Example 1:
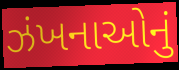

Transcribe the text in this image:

ઝંખનાઓનું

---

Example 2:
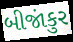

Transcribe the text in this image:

બીજાંકુર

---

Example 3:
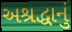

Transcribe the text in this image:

અશ્રદ્ધાનું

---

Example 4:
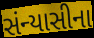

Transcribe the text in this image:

સંન્યાસીના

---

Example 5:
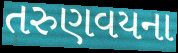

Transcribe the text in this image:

તરુણવયના